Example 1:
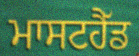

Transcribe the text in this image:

ਮਾਸਟਹੈੱਡ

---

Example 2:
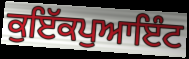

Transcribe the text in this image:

ਕੁਇੱਕਪੁਆਇੰਟ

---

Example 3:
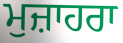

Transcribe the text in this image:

ਮੁਜ਼ਾਹਰਾ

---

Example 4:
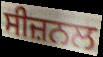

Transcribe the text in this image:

ਸੀਜ਼ਨਲ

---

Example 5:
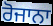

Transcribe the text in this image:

ਰੋਜਾਨਾ